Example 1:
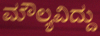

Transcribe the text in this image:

ಮೌಲ್ಯವಿದ್ದು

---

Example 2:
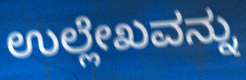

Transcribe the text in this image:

ಉಲ್ಲೇಖವನ್ನು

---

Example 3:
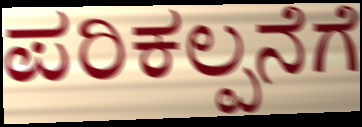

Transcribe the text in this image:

ಪರಿಕಲ್ಪನೆಗೆ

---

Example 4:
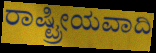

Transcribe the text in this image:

ರಾಷ್ಟ್ರೀಯವಾದಿ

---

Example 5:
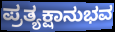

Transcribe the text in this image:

ಪ್ರತ್ಯಕ್ಷಾನುಭವ